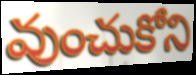
వుంచుకోని